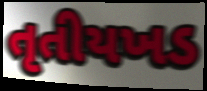
તૃતીયખડ